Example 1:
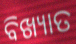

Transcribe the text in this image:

ବିଖ୍ୟାତ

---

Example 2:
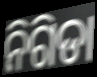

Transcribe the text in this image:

ନିଗିଡା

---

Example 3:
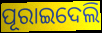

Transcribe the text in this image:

ପୂରାଇଦେଲି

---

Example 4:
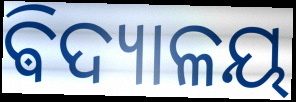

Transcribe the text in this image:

ଵିଦ୍ୟାଳୟ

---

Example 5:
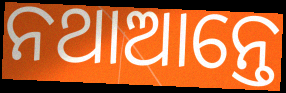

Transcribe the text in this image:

ନଥାଆନ୍ତେ